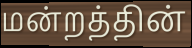
மன்றத்தின்